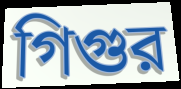
গিগুর